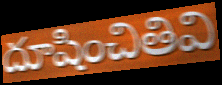
దూషించితివి